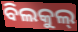
ବିଲକୁଲ୍